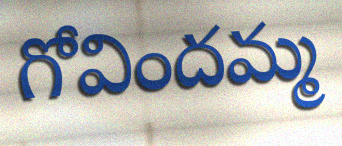
గోవిందమ్మ